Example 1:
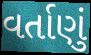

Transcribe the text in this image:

વર્તાણું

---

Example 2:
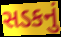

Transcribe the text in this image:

સડકનું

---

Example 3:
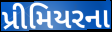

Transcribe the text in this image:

પ્રીમિયરના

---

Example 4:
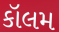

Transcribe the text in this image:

કૉલમ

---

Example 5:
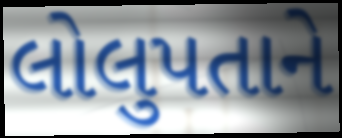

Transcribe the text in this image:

લોલુપતાને